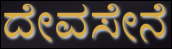
ದೇವಸೇನೆ